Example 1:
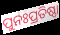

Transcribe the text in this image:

ପୁନଃପ୍ରତିଷ୍ଠା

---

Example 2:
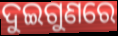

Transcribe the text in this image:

ଦୁଇଗୁଣରେ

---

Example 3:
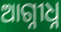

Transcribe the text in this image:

ଆଗ୍ନୀଧ୍ନ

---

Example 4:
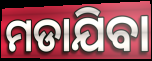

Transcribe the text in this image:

ମଡାଯିବା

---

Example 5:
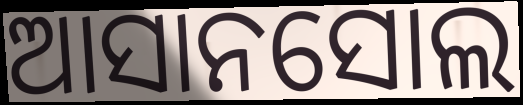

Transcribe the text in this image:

ଆସାନସୋଲ